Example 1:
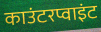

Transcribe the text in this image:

काउंटरप्वाइंट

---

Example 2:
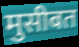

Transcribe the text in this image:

मुसीबत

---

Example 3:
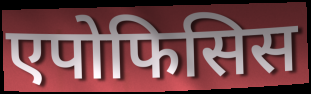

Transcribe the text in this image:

एपोफिसिस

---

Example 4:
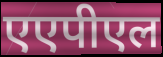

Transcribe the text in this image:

एएपीएल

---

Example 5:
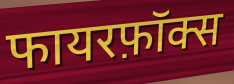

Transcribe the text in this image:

फायरफ़ॉक्स